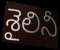
శైలినీ